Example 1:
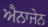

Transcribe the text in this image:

ਐਨਾਜੇਨ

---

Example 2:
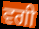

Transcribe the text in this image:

ਵਗੀ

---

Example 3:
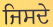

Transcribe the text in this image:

ਜਿਸਦੇ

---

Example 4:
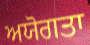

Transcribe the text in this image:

ਅਯੋਗਤਾ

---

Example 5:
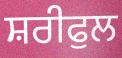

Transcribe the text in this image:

ਸ਼ਰੀਫੁਲ